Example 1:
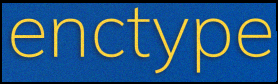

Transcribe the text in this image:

enctype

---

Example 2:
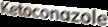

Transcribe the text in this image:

Ketoconazole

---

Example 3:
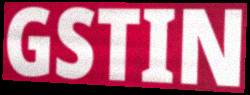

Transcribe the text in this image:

GSTIN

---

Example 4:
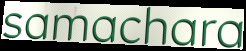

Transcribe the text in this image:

samachara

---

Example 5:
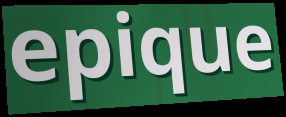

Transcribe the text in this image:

epique